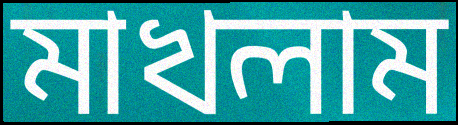
মাখলাম